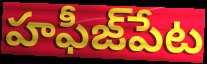
హఫీజ్‌పేట